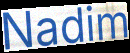
Nadim